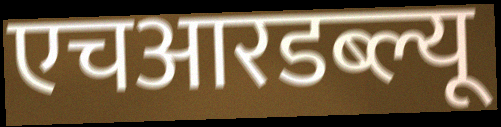
एचआरडब्ल्यू